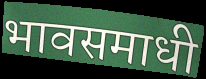
भावसमाधी